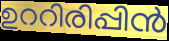
ഉററിരിപ്പിൻ